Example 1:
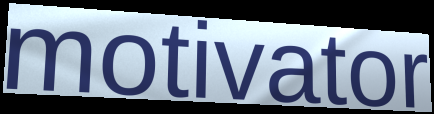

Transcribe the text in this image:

motivator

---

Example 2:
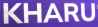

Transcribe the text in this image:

KHARU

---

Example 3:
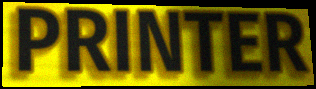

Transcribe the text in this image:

PRINTER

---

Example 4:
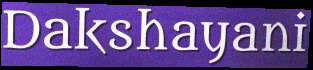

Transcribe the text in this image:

Dakshayani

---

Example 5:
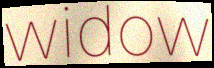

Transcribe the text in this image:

widow